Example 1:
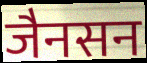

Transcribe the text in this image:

जैनसन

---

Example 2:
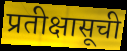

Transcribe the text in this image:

प्रतीक्षासूची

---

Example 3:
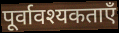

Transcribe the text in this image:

पूर्वावश्यकताएँ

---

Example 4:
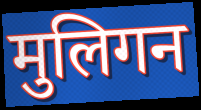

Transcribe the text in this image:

मुलिगन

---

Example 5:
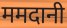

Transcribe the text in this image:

ममदानी